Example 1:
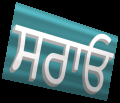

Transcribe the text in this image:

ਸਰਾਓ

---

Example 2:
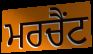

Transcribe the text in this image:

ਮਰਚੈਂਟ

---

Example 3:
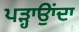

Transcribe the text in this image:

ਪੜ੍ਹਾਉਾਂਦਾ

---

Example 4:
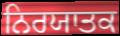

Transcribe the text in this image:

ਨਿਰਯਾਤਕ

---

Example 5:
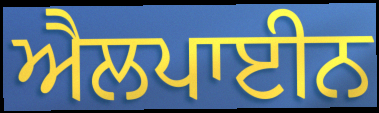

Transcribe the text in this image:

ਐਲਪਾਈਨ